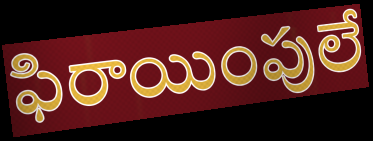
ఫిరాయింపులే